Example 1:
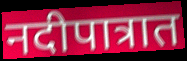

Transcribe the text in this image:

नदीपात्रात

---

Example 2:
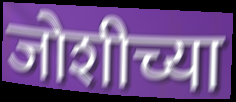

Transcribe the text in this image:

जोशीच्या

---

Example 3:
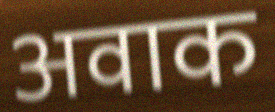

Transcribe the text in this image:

अवाक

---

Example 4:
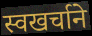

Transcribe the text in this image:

स्वखर्चाने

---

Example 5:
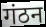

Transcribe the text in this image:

गंठन